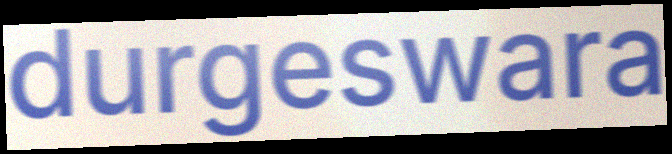
durgeswara